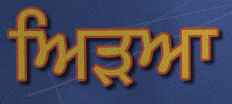
ਅਿੜਆ